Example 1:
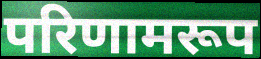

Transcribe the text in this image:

परिणामरूप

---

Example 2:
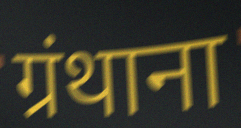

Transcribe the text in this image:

ग्रंथाना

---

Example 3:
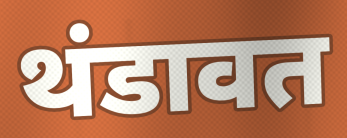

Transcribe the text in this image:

थंडावत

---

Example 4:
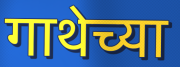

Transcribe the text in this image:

गाथेच्या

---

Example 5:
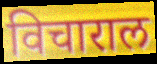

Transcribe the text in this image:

विचाराल